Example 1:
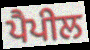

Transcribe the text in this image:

ਪੈਪੀਲ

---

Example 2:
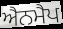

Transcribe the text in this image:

ਐਨਮੈਪ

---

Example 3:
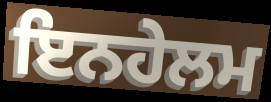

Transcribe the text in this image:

ਇਨਹੇਲਮ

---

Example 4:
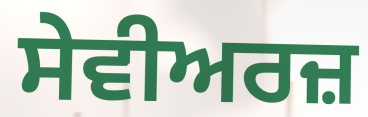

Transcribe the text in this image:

ਸੇਵੀਅਰਜ਼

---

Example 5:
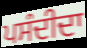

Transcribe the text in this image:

ਪਸੰਦੀਦਾ